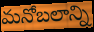
మనోబలాన్ని